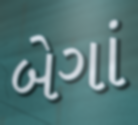
બેગાં